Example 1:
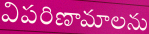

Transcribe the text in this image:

విపరిణామాలను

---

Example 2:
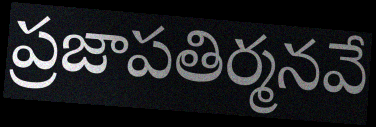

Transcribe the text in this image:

ప్రజాపతిర్మనవే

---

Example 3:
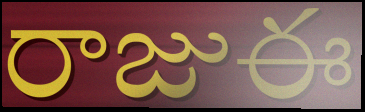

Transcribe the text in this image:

రాజుఈ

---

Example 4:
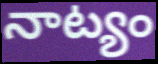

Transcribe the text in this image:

నాట్యం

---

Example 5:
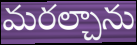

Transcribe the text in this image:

మరల్చాను